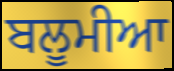
ਬਲੂਮੀਆ